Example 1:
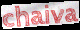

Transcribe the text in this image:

chaiva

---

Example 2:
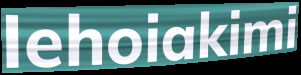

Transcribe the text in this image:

Iehoiakimi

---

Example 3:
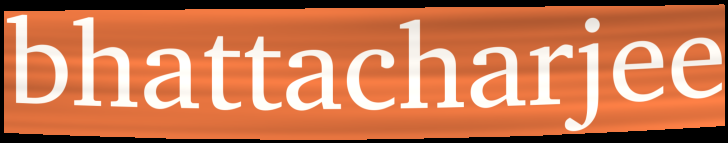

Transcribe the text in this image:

bhattacharjee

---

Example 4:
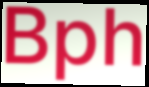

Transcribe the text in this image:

Bph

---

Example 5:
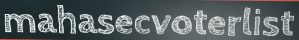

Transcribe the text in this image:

mahasecvoterlist